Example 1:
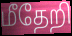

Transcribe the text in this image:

மீதேறி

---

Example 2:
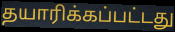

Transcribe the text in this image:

தயாரிக்கப்பட்டது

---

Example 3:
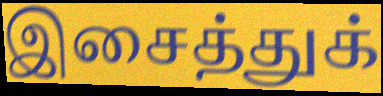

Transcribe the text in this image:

இசைத்துக்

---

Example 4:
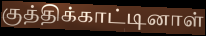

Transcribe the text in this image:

குத்திக்காட்டினாள்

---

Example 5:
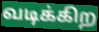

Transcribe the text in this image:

வடிக்கிற